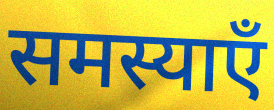
समस्याएँ